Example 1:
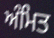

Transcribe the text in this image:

ਅੰਮਿਤ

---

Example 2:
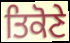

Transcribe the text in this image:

ਤਿਕੋਣੇ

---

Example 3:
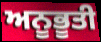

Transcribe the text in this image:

ਅਨੂਭੂਤੀ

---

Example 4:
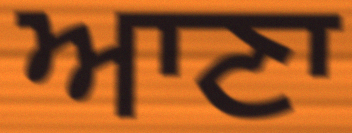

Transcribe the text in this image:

ਆਣਾ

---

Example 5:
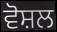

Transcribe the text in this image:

ਵੋਸ਼ਲ